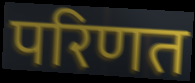
परिणत